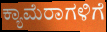
ಕ್ಯಾಮೆರಾಗಳಿಗೆ